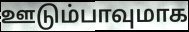
ஊடும்பாவுமாக